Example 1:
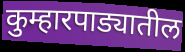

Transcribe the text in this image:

कुम्हारपाड्यातील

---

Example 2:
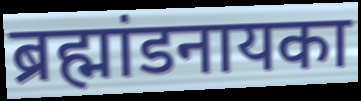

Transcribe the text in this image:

ब्रह्मांडनायका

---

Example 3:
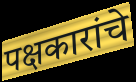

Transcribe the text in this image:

पक्षकारांचे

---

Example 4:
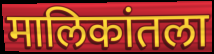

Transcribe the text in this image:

मालिकांतला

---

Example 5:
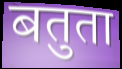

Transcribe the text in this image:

बतुता